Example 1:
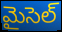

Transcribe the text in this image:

మైసెల్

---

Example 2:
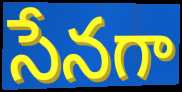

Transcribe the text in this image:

సేనగా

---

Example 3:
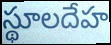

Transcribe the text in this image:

స్థూలదేహ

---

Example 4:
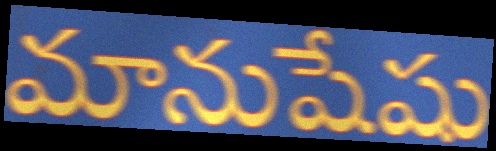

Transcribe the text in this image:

మానుషేషు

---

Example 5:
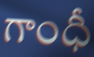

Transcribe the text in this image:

గాంధీ